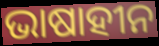
ଭାଷାହୀନ